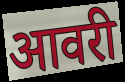
आवरी